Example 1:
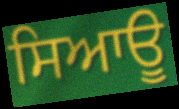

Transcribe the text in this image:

ਸਿਆਊ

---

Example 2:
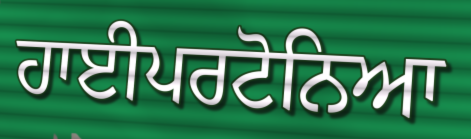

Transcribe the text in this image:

ਹਾਈਪਰਟੋਨਿਆ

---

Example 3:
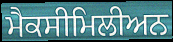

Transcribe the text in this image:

ਮੈਕਸੀਮਿਲੀਅਨ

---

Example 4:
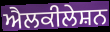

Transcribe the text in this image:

ਐਲਕੀਲੇਸ਼ਨ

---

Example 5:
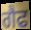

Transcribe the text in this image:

ਗੈਫ